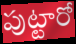
పుట్టారో